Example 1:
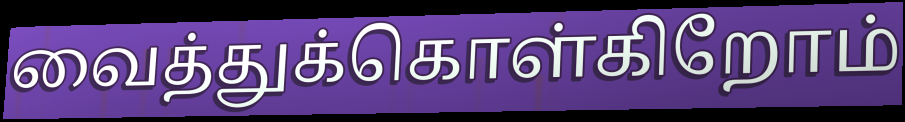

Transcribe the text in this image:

வைத்துக்கொள்கிறோம்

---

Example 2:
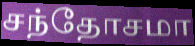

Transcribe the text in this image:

சந்தோசமா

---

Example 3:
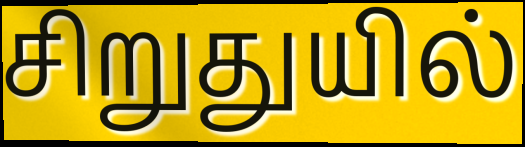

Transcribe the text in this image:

சிறுதுயில்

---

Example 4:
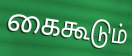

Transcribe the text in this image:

கைகூடும்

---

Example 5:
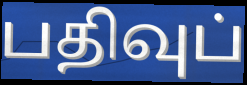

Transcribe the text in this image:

பதிவுப்